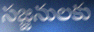
సజ్జనులకు